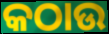
କଠାଉ